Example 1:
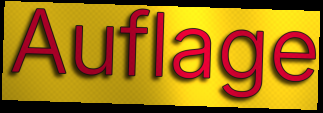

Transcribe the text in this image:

Auflage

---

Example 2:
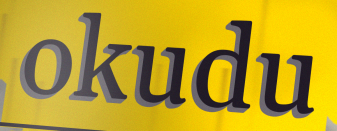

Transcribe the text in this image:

okudu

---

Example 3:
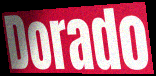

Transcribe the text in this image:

Dorado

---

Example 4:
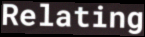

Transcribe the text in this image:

Relating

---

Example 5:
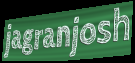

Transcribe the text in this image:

jagranjosh